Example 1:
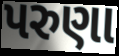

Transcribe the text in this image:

પરુણા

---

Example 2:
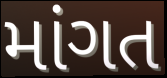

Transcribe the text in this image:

માંગત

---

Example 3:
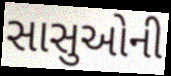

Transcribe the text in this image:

સાસુઓની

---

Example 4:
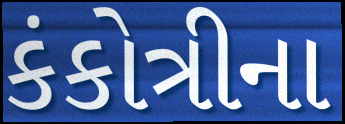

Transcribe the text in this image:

કંકોત્રીના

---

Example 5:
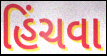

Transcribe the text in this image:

હિંચવા